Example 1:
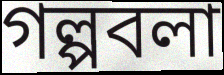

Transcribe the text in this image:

গল্পবলা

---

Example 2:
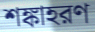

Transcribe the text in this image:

শঙ্কাহরণ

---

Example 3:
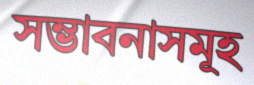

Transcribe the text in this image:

সম্ভাবনাসমূহ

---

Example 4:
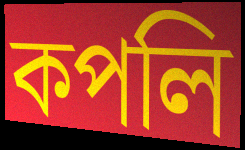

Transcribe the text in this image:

কপলি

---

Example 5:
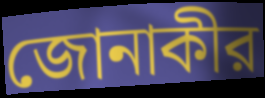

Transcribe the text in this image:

জোনাকীর